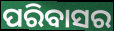
ପରିବାସର